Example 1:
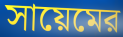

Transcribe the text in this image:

সায়েমের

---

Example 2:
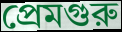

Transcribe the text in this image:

প্রেমগুরু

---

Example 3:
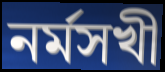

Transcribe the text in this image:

নর্মসখী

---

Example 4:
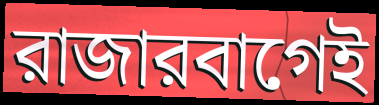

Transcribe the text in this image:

রাজারবাগেই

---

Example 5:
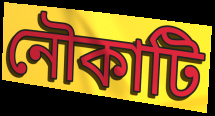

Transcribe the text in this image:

নৌকাটি